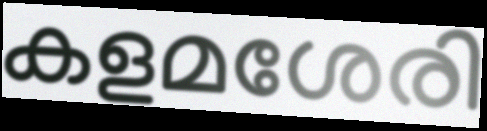
കളമശേരി